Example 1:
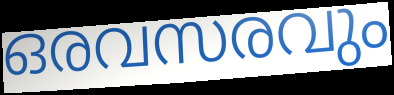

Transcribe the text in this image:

ഒരവസരവും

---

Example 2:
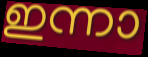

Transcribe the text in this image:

ഇന്നാ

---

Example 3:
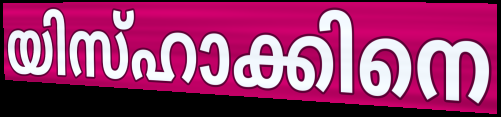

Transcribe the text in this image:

യിസ്ഹാക്കിനെ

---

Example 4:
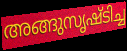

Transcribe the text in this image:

അങ്ങുസൃഷ്ടിച്ച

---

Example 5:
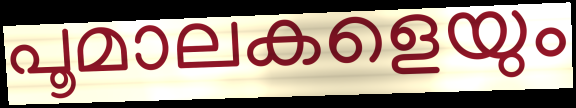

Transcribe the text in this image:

പൂമാലകളെയും